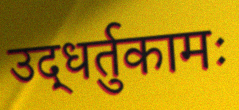
उद्धर्तुकामः